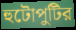
হুটোপুটির